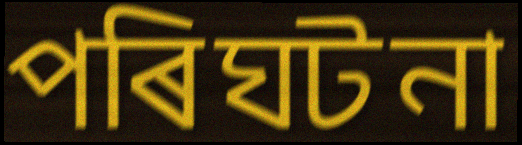
পৰিঘটনা